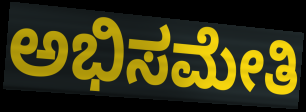
ಅಭಿಸಮೇತಿ